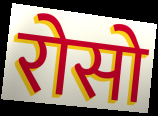
रोसो